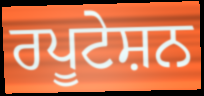
ਰਪੂਟੇਸ਼ਨ